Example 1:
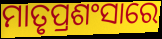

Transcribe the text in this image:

ମାତୃପ୍ରଶଂସାରେ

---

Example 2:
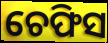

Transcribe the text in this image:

ଚେଫିସ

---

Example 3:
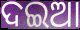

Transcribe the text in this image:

ଦଇଆ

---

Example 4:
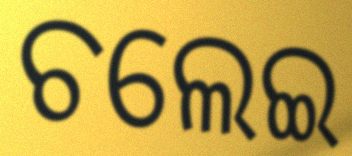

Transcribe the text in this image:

ଚଲେଇ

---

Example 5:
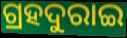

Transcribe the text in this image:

ଗ୍ରହଦୁରାଇ